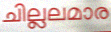
ചില്ലലമാര